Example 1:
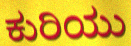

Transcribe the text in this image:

ಕುರಿಯು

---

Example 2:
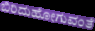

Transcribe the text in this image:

ಬಿರಿದುಹೋಗುವಂತೆ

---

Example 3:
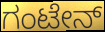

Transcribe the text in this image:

ಗಂಟೇನ್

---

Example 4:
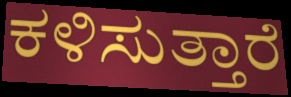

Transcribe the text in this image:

ಕಳಿಸುತ್ತಾರೆ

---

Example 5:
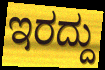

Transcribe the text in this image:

ಇರದ್ದು